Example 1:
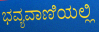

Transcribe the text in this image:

ಭವ್ಯವಾಣಿಯಲ್ಲಿ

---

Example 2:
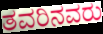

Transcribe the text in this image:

ತವರಿನವರು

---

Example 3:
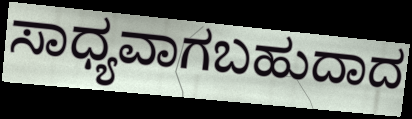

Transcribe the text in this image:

ಸಾಧ್ಯವಾಗಬಹುದಾದ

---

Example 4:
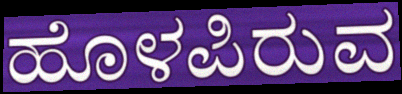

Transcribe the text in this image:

ಹೊಳಪಿರುವ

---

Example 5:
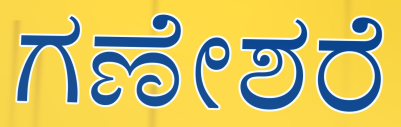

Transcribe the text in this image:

ಗಣೇಶರೆ